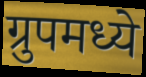
ग्रुपमध्ये